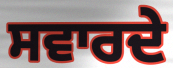
ਸਵਾਰਦੇ